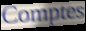
Comptes